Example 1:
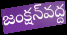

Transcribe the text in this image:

జంక్షన్‌వద్ద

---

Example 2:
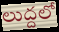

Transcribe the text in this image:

లుద్దలో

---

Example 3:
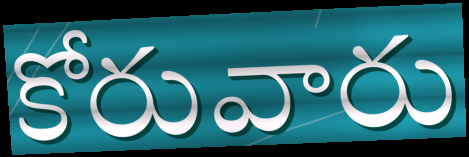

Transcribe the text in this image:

కోరువారు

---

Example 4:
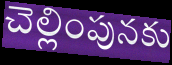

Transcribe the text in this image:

చెల్లింపునకు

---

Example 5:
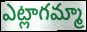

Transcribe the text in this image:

ఎట్లాగమ్మా